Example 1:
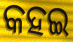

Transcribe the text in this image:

କହଇ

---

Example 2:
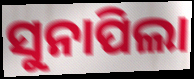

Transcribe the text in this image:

ସୁନାପିଲା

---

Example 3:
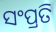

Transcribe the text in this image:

ସଂପ୍ରତି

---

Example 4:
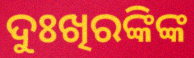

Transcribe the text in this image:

ଦୁଃଖିରଙ୍କିଙ୍କ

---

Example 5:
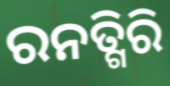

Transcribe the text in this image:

ରନତ୍ଗିରି